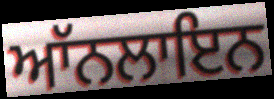
ਆੱਨਲਾਇਨ